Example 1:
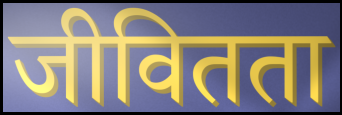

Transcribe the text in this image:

जीवितता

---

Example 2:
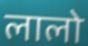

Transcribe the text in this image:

लालो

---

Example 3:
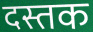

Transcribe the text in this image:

दस्तक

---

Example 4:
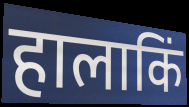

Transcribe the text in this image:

हालाकिं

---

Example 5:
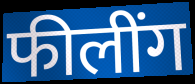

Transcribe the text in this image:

फीलींग